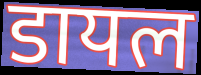
डायल